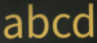
abcd